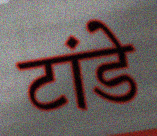
टांडे